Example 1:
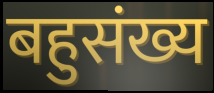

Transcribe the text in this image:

बहुसंख्य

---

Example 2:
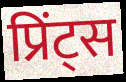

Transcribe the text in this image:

प्रिंट्स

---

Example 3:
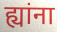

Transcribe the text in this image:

ह्यांना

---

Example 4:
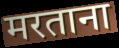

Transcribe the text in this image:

मरताना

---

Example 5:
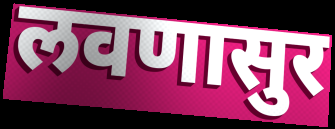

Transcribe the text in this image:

लवणासुर